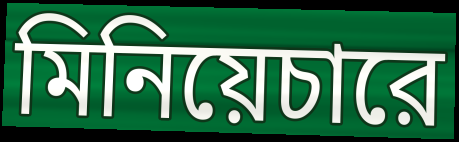
মিনিয়েচারে